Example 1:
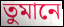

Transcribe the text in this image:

তুমানে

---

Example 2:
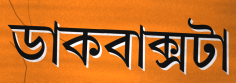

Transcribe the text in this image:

ডাকবাক্সটা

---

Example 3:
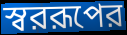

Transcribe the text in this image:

স্বররূপের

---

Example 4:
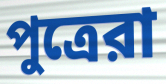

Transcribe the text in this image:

পুত্রেরা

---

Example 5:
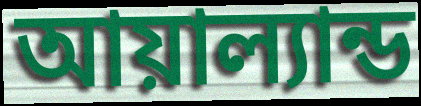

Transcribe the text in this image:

আয়াল্যান্ড